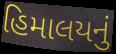
હિમાલયનું